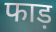
फाड़